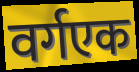
वर्गएक